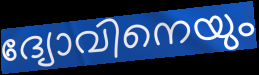
ദ്യോവിനെയും